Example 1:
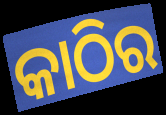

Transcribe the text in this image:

କାଠିର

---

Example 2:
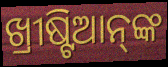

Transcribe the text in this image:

ଖ୍ରୀଷ୍ଟିଆନ୍‌ଙ୍କ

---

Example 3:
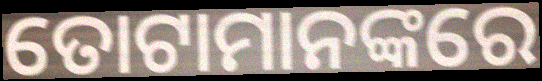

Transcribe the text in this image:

ତୋଟାମାନଙ୍କରେ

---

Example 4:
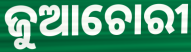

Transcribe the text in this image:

ଜୁଆଚୋରୀ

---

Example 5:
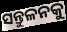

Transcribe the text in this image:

ସନ୍ତୁଳନକୁ